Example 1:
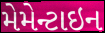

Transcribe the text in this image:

મેમેન્ટાઇન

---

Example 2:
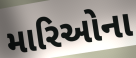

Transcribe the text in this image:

મારિઓના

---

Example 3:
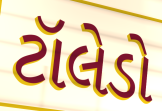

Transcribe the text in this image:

ટૉલેડો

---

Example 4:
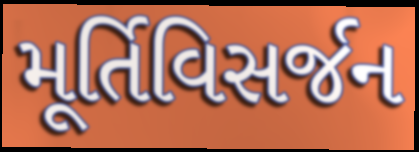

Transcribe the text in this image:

મૂર્તિવિસર્જન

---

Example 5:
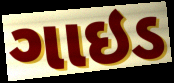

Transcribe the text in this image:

ગાઇડ